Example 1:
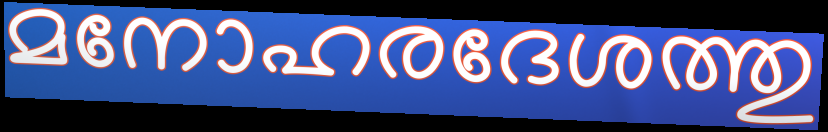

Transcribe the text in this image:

മനോഹരദേശത്തു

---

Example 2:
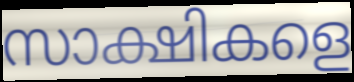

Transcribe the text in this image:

സാക്ഷികളെ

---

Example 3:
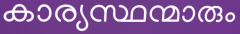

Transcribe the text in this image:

കാര്യസ്ഥന്മാരും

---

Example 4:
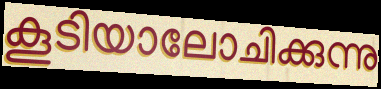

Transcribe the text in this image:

കൂടിയാലോചിക്കുന്നു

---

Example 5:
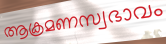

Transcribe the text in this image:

ആക്രമണസ്വഭാവം